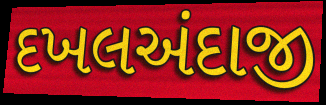
દખલઅંદાજી